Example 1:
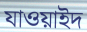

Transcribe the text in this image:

যাওয়াইদ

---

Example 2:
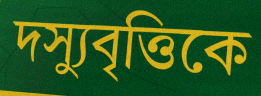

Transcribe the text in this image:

দস্যুবৃত্তিকে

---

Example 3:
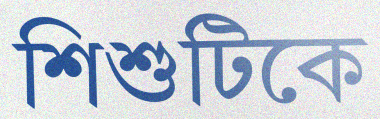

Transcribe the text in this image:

শিশুটিকে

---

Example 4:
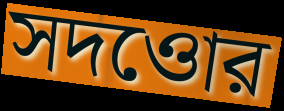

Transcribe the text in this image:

সদওোর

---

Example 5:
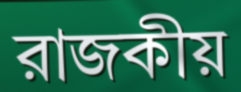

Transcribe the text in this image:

রাজকীয়